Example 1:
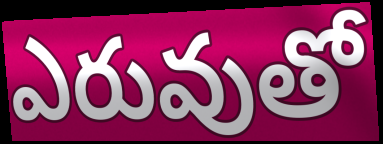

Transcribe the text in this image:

ఎరువుతో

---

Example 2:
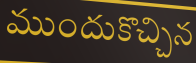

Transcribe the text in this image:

ముందుకొచ్చిన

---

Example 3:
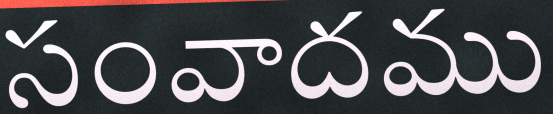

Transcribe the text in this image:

సంవాదము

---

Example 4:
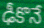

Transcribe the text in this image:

ఢీకొనే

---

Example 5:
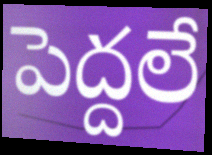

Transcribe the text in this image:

పెద్దలే